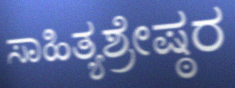
ಸಾಹಿತ್ಯಶ್ರೇಷ್ಠರ